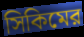
সিকিমের